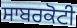
ਸਾਬਰਕੋਟੀ